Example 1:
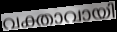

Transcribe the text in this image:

വക്താവായി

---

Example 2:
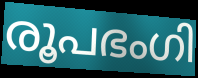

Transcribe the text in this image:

രൂപഭംഗി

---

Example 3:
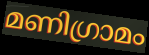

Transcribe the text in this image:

മണിഗ്രാമം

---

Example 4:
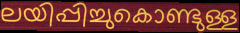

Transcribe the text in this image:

ലയിപ്പിച്ചുകൊണ്ടുള്ള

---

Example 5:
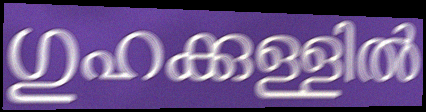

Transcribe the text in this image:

ഗുഹക്കുള്ളിൽ